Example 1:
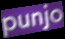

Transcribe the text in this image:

punjo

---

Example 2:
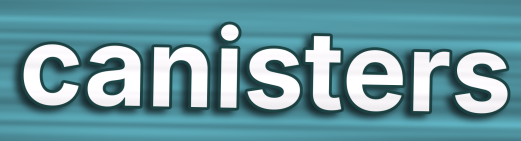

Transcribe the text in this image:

canisters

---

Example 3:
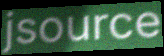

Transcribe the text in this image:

jsource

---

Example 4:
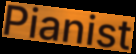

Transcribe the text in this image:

Pianist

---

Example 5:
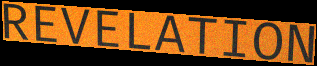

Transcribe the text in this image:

REVELATION